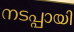
നടപ്പായി